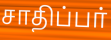
சாதிப்பர்